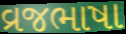
વ્રજભાષા